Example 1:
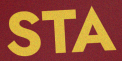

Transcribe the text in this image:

STA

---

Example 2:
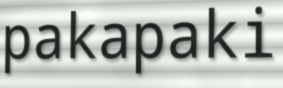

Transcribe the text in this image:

pakapaki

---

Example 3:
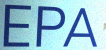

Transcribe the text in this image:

EPA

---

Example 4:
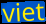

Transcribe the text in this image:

viet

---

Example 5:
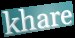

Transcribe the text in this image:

khare